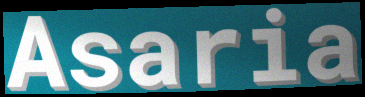
Asaria